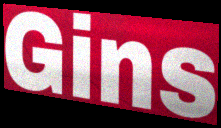
Gins